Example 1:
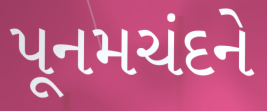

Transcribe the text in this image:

પૂનમચંદને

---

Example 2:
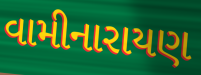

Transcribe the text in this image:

વામીનારાયણ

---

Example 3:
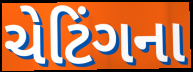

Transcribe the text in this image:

ચેટિંગના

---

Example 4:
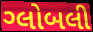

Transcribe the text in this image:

ગ્લોબલી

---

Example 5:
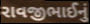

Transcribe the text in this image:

રાવજીભાઈનું